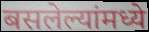
बसलेल्यांमध्ये